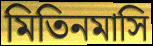
মিতিনমাসি